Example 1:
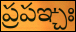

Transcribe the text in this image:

ప్రపఞ్చః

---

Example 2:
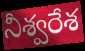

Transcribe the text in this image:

నీశ్వరేశ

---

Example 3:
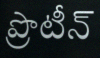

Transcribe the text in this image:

ప్రొటీన్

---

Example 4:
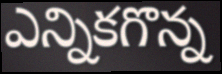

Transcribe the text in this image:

ఎన్నికగొన్న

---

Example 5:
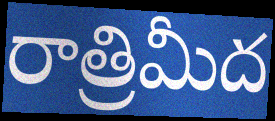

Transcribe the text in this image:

రాత్రిమీద